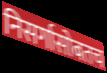
निसर्गासोबतच